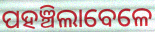
ପହଞ୍ଚିଲାବେଳେ